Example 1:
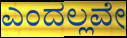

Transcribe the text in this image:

ಎಂದಲ್ಲವೇ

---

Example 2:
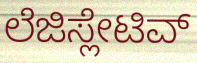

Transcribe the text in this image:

ಲೆಜಿಸ್ಲೇಟಿವ್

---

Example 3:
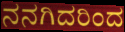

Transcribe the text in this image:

ನನಗಿದರಿಂದ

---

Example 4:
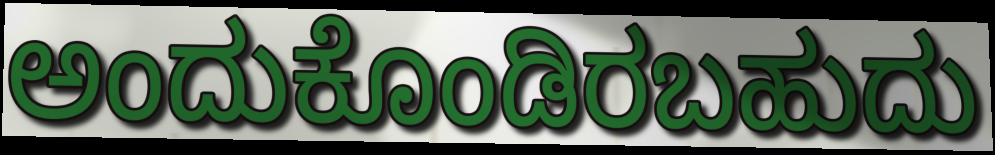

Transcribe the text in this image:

ಅಂದುಕೊಂಡಿರಬಹುದು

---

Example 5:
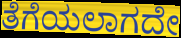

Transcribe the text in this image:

ತೆಗೆಯಲಾಗದೇ